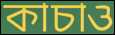
কাচাও